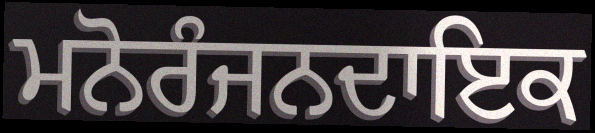
ਮਨੋਰੰਜਨਦਾਇਕ